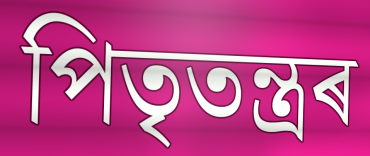
পিতৃতন্ত্ৰৰ